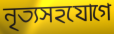
নৃত্যসহযোগে